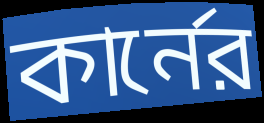
কার্নের